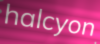
halcyon